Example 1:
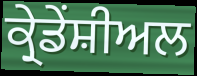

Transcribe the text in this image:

ਕ੍ਰੇਡੇਂਸ਼ੀਅਲ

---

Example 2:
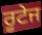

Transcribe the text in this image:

ਰੂਟੇਜ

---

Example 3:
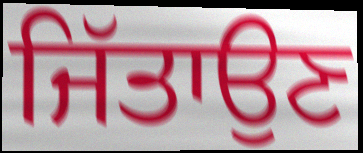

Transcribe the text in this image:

ਜਿੱਤਾਉਣ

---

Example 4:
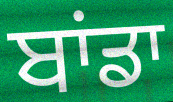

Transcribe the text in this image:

ਬਾਂਡਾ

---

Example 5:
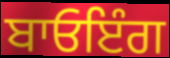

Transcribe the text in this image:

ਬਾਓਇੰਗ